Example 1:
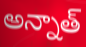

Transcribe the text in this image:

అన్నాత్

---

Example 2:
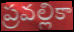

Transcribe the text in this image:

ప్రవల్లికా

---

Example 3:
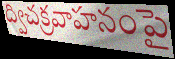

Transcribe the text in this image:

ద్విచక్రవాహనంపై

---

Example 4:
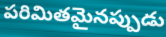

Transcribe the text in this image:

పరిమితమైనప్పుడు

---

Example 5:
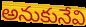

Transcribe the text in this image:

అనుకునేవి